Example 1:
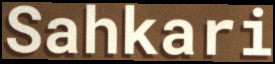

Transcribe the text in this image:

Sahkari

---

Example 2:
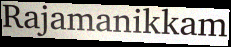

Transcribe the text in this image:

Rajamanikkam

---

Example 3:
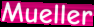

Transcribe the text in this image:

Mueller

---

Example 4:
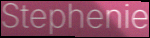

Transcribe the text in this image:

Stephenie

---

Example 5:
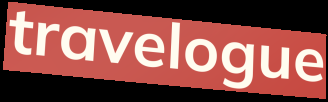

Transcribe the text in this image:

travelogue